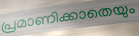
പ്രമാണിക്കാതെയും